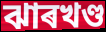
ঝাৰখণ্ড